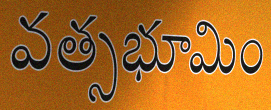
వత్సభూమిం